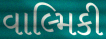
વાલ્મિકી